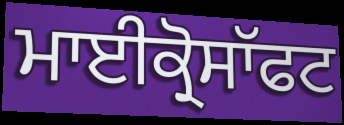
ਮਾਈਕ੍ਰੋਸਾੱਫਟ